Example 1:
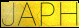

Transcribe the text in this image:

JAPH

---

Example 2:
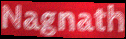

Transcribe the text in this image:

Nagnath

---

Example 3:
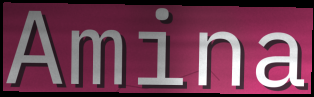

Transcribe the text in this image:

Amina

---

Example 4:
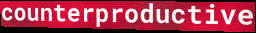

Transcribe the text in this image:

counterproductive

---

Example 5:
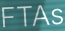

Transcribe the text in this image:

FTAs